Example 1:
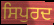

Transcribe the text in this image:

ਸਿਪੁਰਦ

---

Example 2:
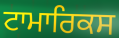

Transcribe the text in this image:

ਟਾਮਾਰਿਕਸ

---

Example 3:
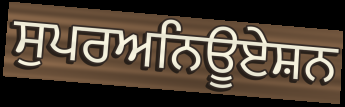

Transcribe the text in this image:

ਸੁਪਰਅਨਿਊਏਸ਼ਨ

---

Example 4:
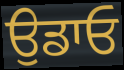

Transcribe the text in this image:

ਉਡਾਓ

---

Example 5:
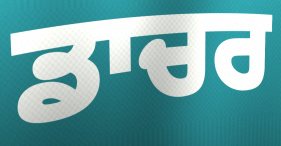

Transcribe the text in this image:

ਡਾਚਰ